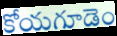
కోయగూడెం